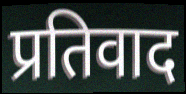
प्रतिवाद